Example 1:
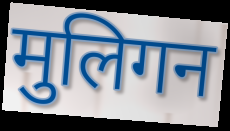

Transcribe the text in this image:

मुलिगन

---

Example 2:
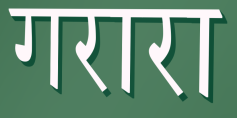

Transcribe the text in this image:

गरारा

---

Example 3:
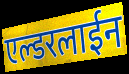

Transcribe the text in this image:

एल्डरलाईन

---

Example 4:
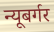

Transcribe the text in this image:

न्यूबर्गर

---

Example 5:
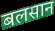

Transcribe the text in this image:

बलसान